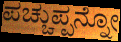
ಪಚ್ಚುಪ್ಪನ್ನೋ